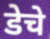
डेचे